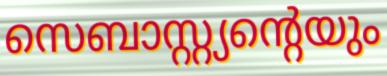
സെബാസ്റ്റ്യന്റെയും